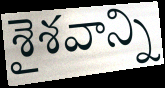
శైశవాన్ని